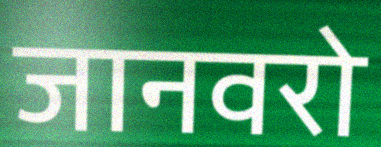
जानवरो